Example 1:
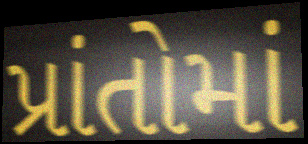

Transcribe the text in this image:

પ્રાંતોમાં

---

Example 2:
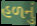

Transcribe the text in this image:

હળનું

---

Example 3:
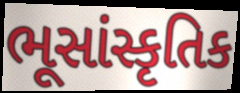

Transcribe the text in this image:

ભૂસાંસ્કૃતિક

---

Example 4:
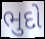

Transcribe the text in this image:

ભુદો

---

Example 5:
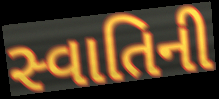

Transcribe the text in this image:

સ્વાતિની